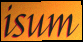
isum